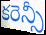
కరెన్సీ